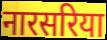
नारसरिया